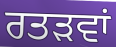
ਰਤੜਵਾਂ